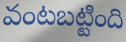
వంటబట్టింది